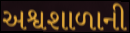
અશ્વશાળાની